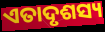
ଏତାଦୃଶସ୍ୟ